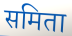
समिता